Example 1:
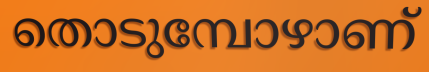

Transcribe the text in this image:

തൊടുമ്പോഴാണ്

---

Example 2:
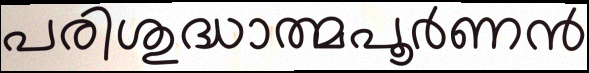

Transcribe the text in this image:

പരിശുദ്ധാത്മപൂർണൻ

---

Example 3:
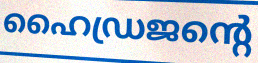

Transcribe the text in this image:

ഹൈഡ്രജന്റെ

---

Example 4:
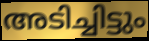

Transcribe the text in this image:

അടിച്ചിട്ടും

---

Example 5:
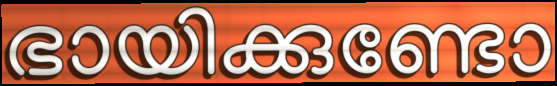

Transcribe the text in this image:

ഭായിക്കുണ്ടോ